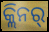
କ୍ଲିନର୍